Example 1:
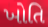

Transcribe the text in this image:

ખોતિ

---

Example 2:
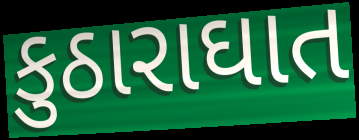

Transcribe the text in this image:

કુઠારાઘાત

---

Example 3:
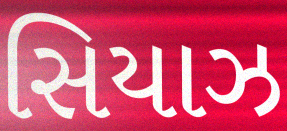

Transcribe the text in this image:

સિયાઝ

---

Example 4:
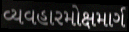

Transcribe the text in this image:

વ્યવહારમોક્ષમાર્ગ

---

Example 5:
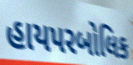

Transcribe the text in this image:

હાયપરબોલિક